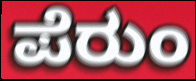
ಪೆರುಂ